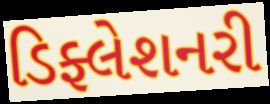
ડિફ્લેશનરી